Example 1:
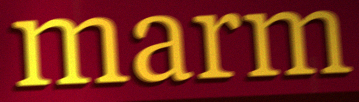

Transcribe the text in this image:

marm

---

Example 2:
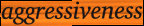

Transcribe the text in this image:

aggressiveness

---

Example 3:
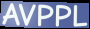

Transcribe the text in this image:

AVPPL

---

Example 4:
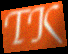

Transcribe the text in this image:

TK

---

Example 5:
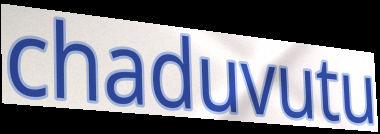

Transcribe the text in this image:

chaduvutu